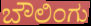
ಬೌಲಿಂಗು